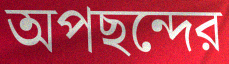
অপছন্দের